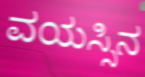
ವಯಸ್ಸಿನ